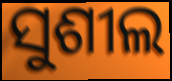
ସୁଶୀଲ